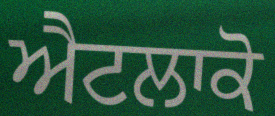
ਐਟਲਾਕੋ